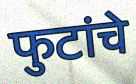
फुटांचे